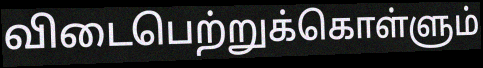
விடைபெற்றுக்கொள்ளும்